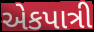
એકપાત્રી